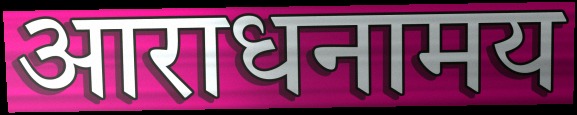
आराधनामय